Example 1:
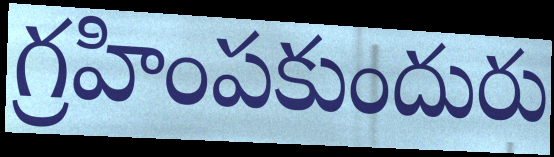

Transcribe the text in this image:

గ్రహింపకుందురు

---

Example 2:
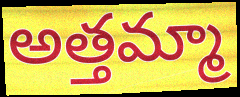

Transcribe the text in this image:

అత్తమ్మా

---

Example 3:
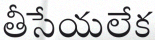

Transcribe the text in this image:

తీసేయలేక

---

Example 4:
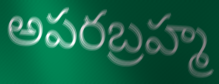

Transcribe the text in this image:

అపరబ్రహ్మ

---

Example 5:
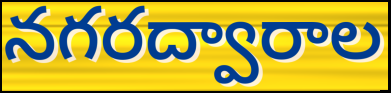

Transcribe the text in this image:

నగరద్వారాల